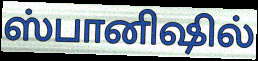
ஸ்பானிஷில்